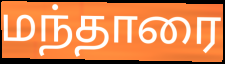
மந்தாரை